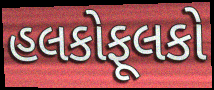
હલકોફૂલકો